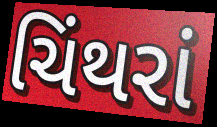
ચિંથરાં